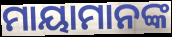
ମାୟାମାନଙ୍କ